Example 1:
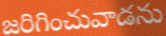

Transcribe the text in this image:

జరిగించువాడను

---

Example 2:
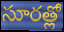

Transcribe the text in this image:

సూరత్లో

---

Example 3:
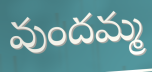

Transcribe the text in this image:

వుందమ్మ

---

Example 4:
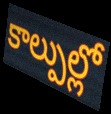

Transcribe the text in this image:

కాల్పుల్లో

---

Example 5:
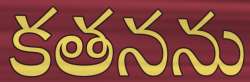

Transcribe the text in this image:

కతనను